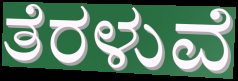
ತೆರಳುವೆ